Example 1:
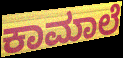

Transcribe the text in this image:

ಕಾಮಾಲೆ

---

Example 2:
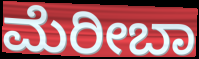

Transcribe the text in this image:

ಮೆರೀಬಾ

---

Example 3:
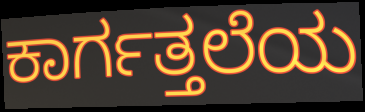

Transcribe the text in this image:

ಕಾರ್ಗತ್ತಲೆಯ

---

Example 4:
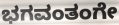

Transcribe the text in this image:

ಭಗವಂತಂಗೇ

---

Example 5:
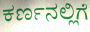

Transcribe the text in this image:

ಕರ್ಣನಲ್ಲಿಗೆ